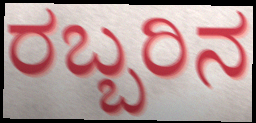
ರಬ್ಬರಿನ